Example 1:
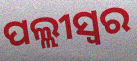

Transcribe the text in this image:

ପଲ୍ଲୀସ୍ଵର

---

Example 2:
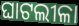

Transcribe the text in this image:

ଘାଟଲୀଳା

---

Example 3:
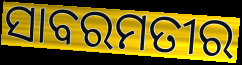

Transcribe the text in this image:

ସାବରମତୀର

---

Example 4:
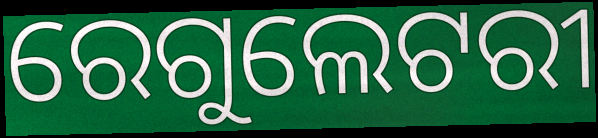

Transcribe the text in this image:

ରେଗୁଲେଟରୀ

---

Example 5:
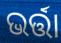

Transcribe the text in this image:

ଭର୍ତ୍ତା